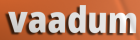
vaadum